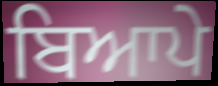
ਬਿਆਪੇ